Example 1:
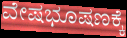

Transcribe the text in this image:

ವೇಷಭೂಷಣಕ್ಕೆ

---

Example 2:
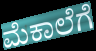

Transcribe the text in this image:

ಮೆಕಾಲೆಗೆ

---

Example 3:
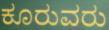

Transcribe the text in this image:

ಕೂರುವರು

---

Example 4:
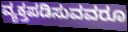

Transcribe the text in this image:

ವ್ಯಕ್ತಪಡಿಸುವವರೂ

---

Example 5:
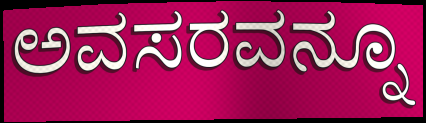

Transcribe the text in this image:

ಅವಸರವನ್ನೂ